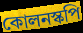
কোলনস্কপি